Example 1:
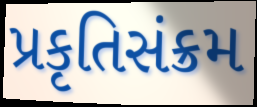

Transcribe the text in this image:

પ્રકૃતિસંક્રમ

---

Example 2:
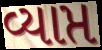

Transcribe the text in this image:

વ્યાપ્ત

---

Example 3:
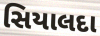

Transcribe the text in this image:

સિયાલદા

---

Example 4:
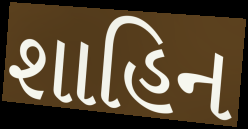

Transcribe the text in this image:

શાહિન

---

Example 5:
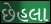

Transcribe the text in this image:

છેહલા